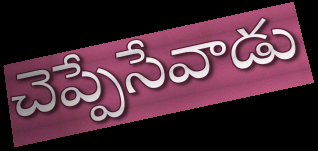
చెప్పేసేవాడు